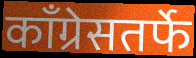
कॉँग्रेसतर्फे